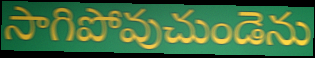
సాగిపోవుచుండెను